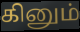
கினும்